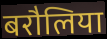
बरौलिया